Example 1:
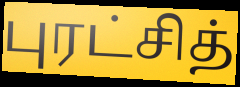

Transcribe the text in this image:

புரட்சித்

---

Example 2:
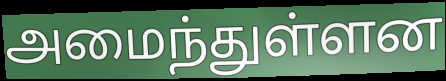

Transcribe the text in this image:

அமைந்துள்ளன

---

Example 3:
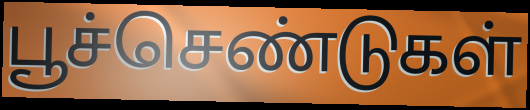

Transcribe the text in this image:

பூச்செண்டுகள்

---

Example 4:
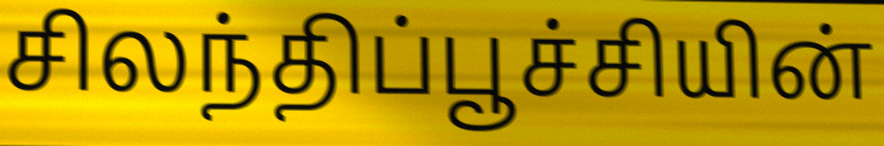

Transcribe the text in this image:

சிலந்திப்பூச்சியின்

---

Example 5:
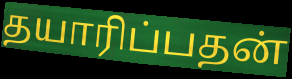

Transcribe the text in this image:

தயாரிப்பதன்